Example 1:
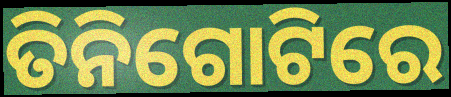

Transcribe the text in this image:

ତିନିଗୋଟିରେ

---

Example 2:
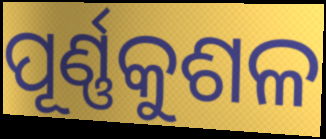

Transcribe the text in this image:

ପୂର୍ଣ୍ଣକୁଶଳ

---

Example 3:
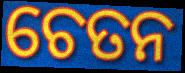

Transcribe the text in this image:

ଚେତନ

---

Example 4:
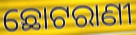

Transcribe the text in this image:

ଛୋଟରାଣୀ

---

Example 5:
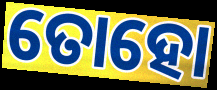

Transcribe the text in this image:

ତୋହୋ